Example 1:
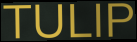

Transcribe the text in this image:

TULIP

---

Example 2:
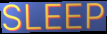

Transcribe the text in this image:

SLEEP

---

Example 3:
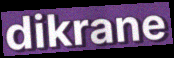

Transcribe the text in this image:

dikrane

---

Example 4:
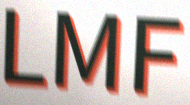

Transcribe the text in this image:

LMF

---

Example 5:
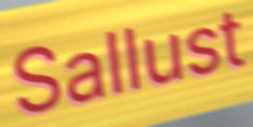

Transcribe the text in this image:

Sallust